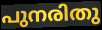
പുനരിതു